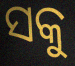
ସକୁ